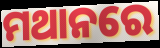
ମଥାନରେ